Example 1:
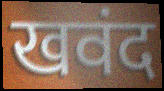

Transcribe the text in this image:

खवंद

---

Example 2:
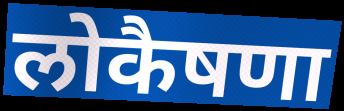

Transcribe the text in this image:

लोकैषणा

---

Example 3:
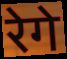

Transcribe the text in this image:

रेगे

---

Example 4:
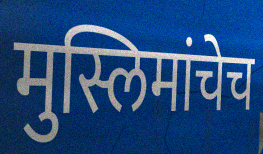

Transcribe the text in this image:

मुस्लिमांचेच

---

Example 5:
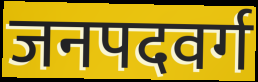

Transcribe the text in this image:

जनपदवर्ग